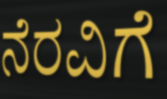
ನೆರವಿಗೆ